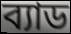
ব্যাড